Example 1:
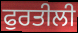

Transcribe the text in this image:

ਫੁਰਤੀਲੀ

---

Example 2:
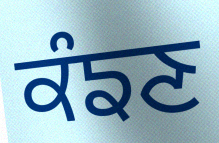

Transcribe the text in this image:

ਕੰਙਣ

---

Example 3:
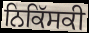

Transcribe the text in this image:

ਨਿਕਿੱਸਕੀ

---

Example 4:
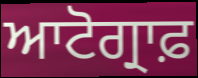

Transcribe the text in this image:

ਆਟੋਗ੍ਰਾਫ਼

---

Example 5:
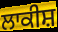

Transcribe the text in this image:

ਲਾਕੀਸ਼